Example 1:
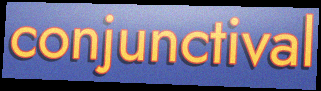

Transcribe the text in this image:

conjunctival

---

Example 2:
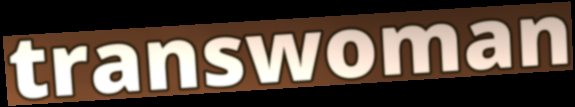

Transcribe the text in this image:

transwoman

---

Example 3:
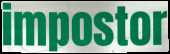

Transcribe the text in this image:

impostor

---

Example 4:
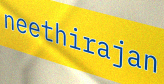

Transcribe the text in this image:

neethirajan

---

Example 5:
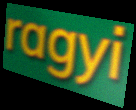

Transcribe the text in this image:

ragyi